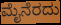
ಮೈನೆರದು